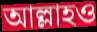
আল্লাহও